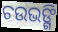
ଚଉଭଙ୍ଗି